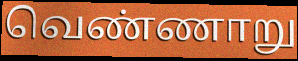
வெண்ணாறு